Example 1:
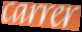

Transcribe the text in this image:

carrer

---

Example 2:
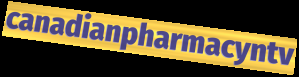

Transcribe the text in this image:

canadianpharmacyntv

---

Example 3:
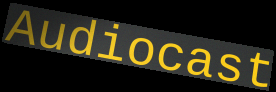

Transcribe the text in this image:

Audiocast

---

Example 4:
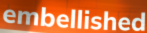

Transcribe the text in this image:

embellished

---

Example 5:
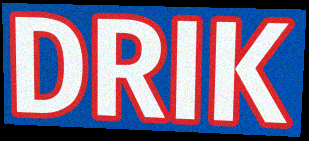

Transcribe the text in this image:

DRIK